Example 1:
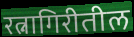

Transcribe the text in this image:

रत्नागिरीतील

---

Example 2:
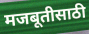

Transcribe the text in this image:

मजबूतीसाठी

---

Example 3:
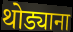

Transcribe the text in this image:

थोड्याना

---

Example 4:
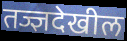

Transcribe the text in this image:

तज्ज्ञदेखील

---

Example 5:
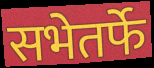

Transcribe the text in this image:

सभेतर्फे